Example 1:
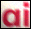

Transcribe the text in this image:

ai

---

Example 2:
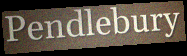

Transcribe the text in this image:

Pendlebury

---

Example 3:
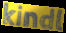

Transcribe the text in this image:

kindl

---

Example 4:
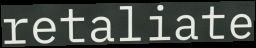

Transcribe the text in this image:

retaliate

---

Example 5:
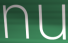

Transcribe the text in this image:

nu